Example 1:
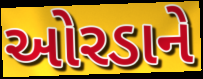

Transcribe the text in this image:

ઓરડાને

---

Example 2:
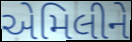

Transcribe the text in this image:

એમિલીને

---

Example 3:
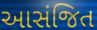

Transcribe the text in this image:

આસંજિત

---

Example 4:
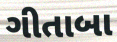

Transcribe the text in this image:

ગીતાબા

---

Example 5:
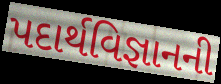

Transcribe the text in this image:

પદાર્થવિજ્ઞાનની